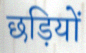
छड़ियों